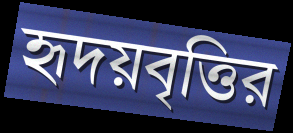
হৃদয়বৃত্তির